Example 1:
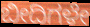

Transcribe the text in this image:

ಬೀದಿಗಳೇ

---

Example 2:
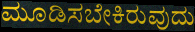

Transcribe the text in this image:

ಮೂಡಿಸಬೇಕಿರುವುದು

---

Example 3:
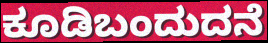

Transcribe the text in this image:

ಕೂಡಿಬಂದುದನೆ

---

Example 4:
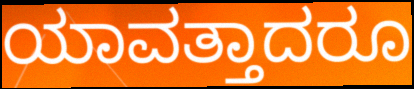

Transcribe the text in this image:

ಯಾವತ್ತಾದರೂ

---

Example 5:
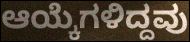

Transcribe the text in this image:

ಆಯ್ಕೆಗಳಿದ್ದವು